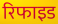
रिफाइड